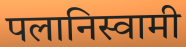
पलानिस्वामी